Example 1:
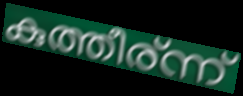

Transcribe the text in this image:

കുത്തീര്ന്ന്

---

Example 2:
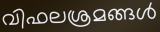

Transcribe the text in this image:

വിഫലശ്രമങ്ങൾ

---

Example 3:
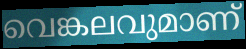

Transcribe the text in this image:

വെങ്കലവുമാണ്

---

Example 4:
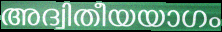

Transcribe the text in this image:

അദ്വിതീയയാഗം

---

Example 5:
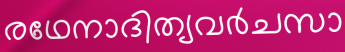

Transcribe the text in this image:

രഥേനാദിത്യവർചസാ